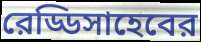
রেড্ডিসাহেবের